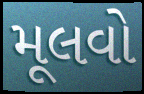
મૂલવો